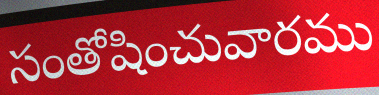
సంతోషించువారము